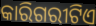
କାରିଗରୀଟିଏ